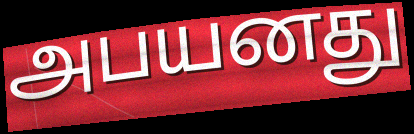
அபயனது